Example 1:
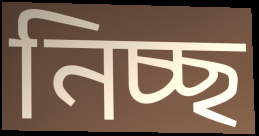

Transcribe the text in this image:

নিচ্ছ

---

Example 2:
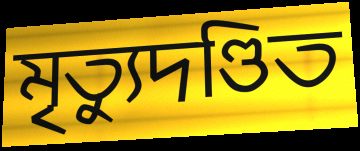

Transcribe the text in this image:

মৃত্যুদণ্ডিত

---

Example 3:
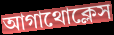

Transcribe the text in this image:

আগাথোক্লেস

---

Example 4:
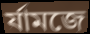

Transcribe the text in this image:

র্যামজে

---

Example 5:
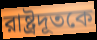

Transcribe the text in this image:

রাষ্ট্রদূতকে